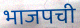
भाजपची